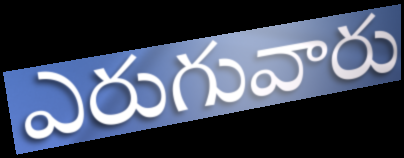
ఎరుగువారు